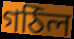
গঠিল